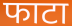
फाटा